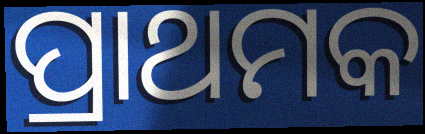
ପ୍ରାଥମକ